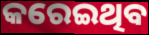
କରେଇଥିବ